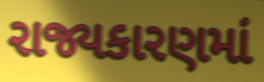
રાજ્યકારણમાં